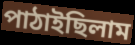
পাঠাইছিলাম